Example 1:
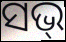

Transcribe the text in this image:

ସଭ୍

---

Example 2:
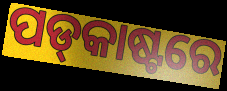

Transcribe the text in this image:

ପଡ୍‌କାଷ୍ଟରେ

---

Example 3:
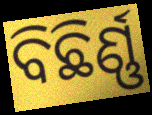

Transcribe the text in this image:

ବିଛିର୍ଣ୍ଣ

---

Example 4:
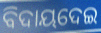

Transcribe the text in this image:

ବିଦାୟଦେଇ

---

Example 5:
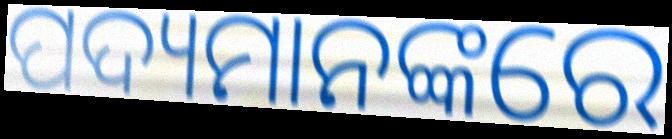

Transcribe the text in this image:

ପଦ୍ୟମାନଙ୍କରେ